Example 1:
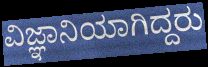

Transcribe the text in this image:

ವಿಜ್ಞಾನಿಯಾಗಿದ್ದರು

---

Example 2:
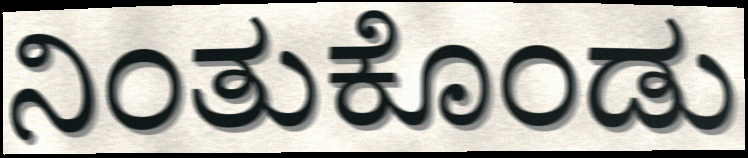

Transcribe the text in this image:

ನಿಂತುಕೊಂಡು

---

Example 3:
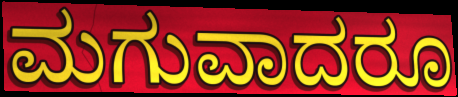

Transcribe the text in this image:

ಮಗುವಾದರೂ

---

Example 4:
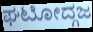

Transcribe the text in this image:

ಘಟೋದ್ಗಜ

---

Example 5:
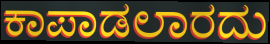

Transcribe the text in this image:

ಕಾಪಾಡಲಾರದು